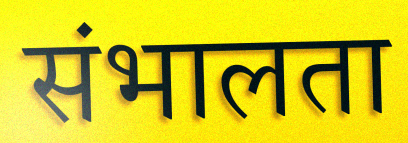
संभालता